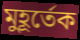
মুহূর্তেক